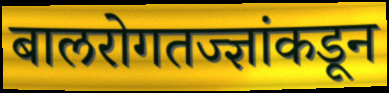
बालरोगतज्ज्ञांकडून